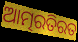
ଆତ୍ମରତିରତ